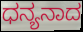
ಧನ್ಯನಾದ